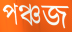
পঞ্চজ